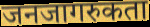
जनजागरुकता